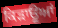
ਕਿੜਾਊਆਂ